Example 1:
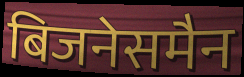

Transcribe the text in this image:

बिजनेसमैन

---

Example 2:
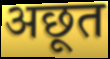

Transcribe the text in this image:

अछूत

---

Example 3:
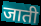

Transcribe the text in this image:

जाती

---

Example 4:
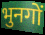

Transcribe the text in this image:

भुनगों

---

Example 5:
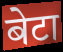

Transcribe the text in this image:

बेटा